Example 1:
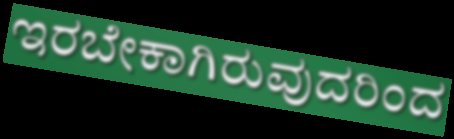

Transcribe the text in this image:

ಇರಬೇಕಾಗಿರುವುದರಿಂದ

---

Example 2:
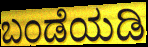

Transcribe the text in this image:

ಬಂಡೆಯಡಿ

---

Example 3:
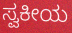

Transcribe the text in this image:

ಸ್ವಕೀಯ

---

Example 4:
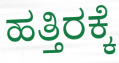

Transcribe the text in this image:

ಹತ್ತಿರಕ್ಕೆ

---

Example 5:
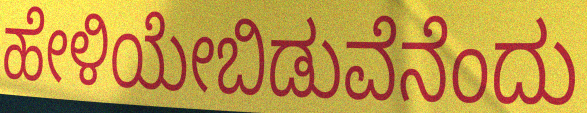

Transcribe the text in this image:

ಹೇಳಿಯೇಬಿಡುವೆನೆಂದು